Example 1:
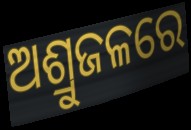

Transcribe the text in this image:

ଅଶ୍ରୁଜଳରେ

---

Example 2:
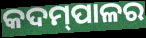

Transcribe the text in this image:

କଦମ୍‍ପାଳର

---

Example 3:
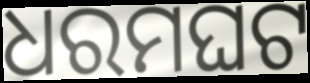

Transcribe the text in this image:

ଧରମଘଟ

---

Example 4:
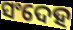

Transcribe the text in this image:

ସଂଦେହ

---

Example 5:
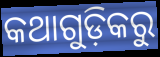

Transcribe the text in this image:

କଥାଗୁଡ଼ିକରୁ